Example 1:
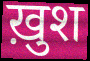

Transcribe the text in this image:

ख़ुश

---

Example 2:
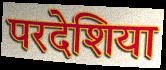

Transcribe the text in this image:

परदेशिया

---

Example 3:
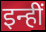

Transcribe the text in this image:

इन्‍हीं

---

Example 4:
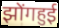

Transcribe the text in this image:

झोंगहुई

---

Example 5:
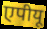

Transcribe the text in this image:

एपीयू